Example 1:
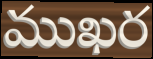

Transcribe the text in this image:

ముఖర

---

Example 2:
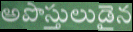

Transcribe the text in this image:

అపొస్తులుడైన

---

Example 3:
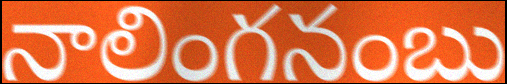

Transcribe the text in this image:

నాలింగనంబు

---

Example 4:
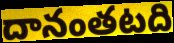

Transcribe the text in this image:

దానంతటది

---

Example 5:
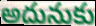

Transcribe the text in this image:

అదునుకు